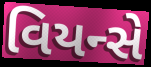
વિયન્સે